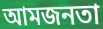
আমজনতা